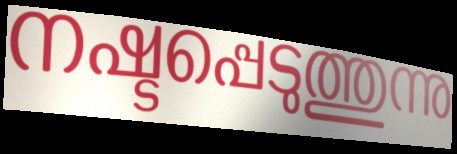
നഷ്ടപ്പെടുത്തുന്നു